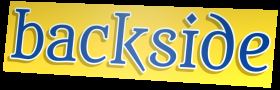
backside